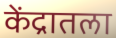
केंद्रातला